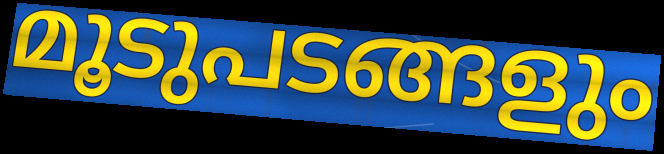
മൂടുപടങ്ങളും